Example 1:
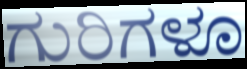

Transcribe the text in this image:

ಗುರಿಗಳೂ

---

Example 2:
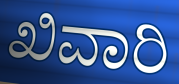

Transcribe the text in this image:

ಖಿವಾರಿ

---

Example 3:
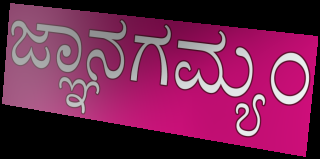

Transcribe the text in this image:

ಜ್ಞಾನಗಮ್ಯಂ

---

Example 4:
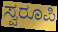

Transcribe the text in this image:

ಸ್ವರೂಪಿ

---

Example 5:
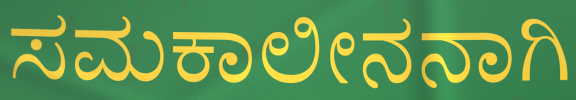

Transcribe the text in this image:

ಸಮಕಾಲೀನನಾಗಿ